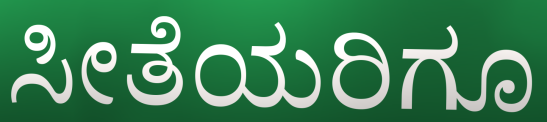
ಸೀತೆಯರಿಗೂ